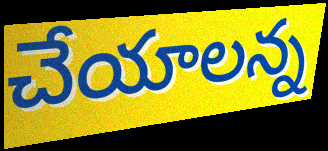
చేయాలన్న